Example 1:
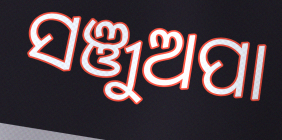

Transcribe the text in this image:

ସଞ୍ଜୁଅପା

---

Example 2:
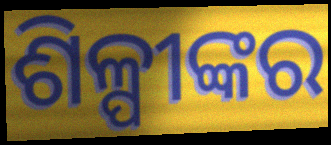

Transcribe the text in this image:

ଶିଳ୍ପୀଙ୍କର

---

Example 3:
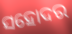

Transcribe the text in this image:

ସହୋଦର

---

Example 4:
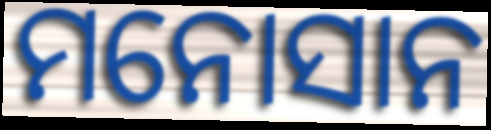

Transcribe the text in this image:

ମନୋସାନ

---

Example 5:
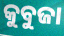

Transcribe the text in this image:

କୁବୁଜା